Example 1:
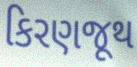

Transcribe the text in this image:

કિરણજૂથ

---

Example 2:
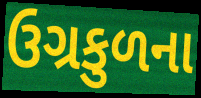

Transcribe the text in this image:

ઉગ્રકુળના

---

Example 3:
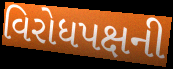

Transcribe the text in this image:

વિરોધપક્ષની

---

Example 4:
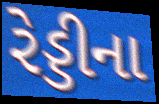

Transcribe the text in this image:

રેડ્ડીના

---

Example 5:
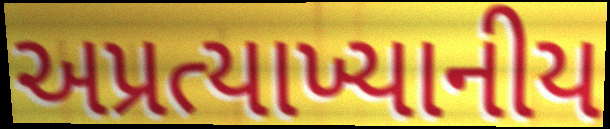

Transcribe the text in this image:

અપ્રત્યાખ્યાનીય